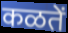
कळतें